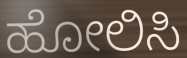
ಹೋಲಿಸಿ